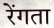
रेंगता